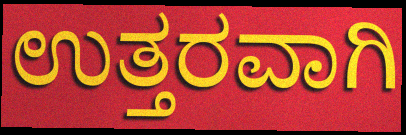
ಉತ್ತರವಾಗಿ